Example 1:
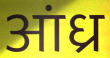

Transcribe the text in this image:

आंध्र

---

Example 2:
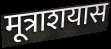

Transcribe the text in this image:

मूत्राशयास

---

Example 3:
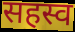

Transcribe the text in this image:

सहस्व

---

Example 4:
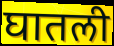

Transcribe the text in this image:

घातली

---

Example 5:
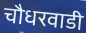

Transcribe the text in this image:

चौधरवाडी